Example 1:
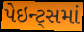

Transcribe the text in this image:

પેઇન્ટ્સમાં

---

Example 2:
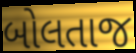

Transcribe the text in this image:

બોલતાજ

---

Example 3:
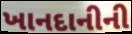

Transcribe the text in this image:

ખાનદાનીની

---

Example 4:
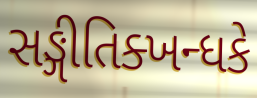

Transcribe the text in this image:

સઙ્ગીતિક્ખન્ધકે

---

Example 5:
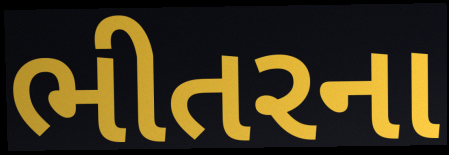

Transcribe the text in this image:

ભીતરના